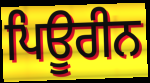
ਪਿਊਰੀਨ